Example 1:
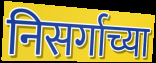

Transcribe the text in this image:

निसर्गाच्या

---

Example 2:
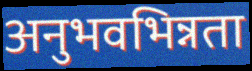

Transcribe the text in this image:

अनुभवभिन्नता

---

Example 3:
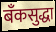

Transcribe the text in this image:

बँकसुद्धा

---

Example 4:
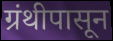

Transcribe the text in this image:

ग्रंथीपासून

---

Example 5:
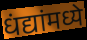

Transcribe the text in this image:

धंद्यांमध्ये